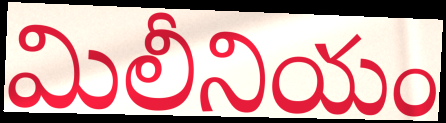
మిలీనియం